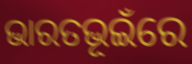
ଭାରତଭୂଇଁରେ